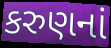
કરુણનાં